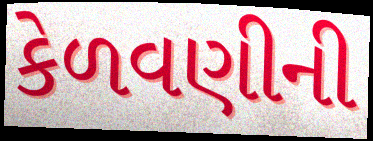
કેળવણીની